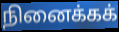
நினைக்கக்